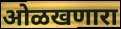
ओळखणारा